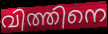
വിത്തിനെ